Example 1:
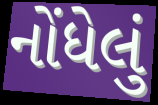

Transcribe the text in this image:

નોંધેલું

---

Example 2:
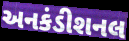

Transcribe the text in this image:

અનકંડીશનલ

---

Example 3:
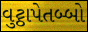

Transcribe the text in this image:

વુટ્ઠાપેતબ્બો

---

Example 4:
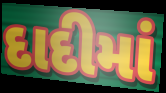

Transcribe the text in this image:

દાદીમાં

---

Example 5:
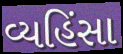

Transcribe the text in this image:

વ્યહિંસા